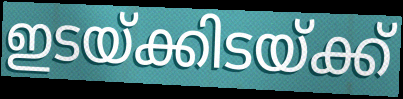
ഇടയ്ക്കിടയ്ക്ക്